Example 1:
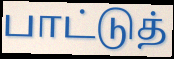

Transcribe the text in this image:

பாட்டுத்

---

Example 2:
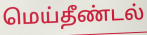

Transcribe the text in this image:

மெய்தீண்டல்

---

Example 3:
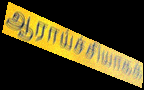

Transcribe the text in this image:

ஆராய்ச்சியாகக்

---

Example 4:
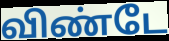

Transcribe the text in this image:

விண்டே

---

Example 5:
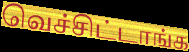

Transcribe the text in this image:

வெச்சிட்டாங்க